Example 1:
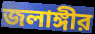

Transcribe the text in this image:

জলাঙ্গীর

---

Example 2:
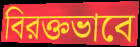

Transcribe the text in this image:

বিরক্তভাবে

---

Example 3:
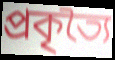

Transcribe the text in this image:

প্রকৃত্যৈ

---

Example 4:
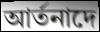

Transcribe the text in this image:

আর্তনাদে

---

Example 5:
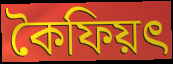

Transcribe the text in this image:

কৈফিয়ৎ